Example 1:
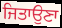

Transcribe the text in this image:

ਜਿਤਾਉਣਾ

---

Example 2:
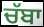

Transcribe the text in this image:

ਚੱਬਾ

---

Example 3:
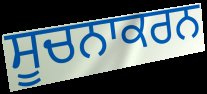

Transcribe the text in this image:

ਸੂਚਨਾਕਰਨ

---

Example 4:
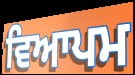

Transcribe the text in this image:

ਵਿਆਪਮ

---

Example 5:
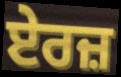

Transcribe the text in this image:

ਏਰਜ਼